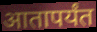
आतापर्यंत